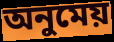
অনুমেয়